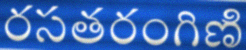
రసతరంగిణి